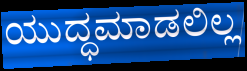
ಯುದ್ಧಮಾಡಲಿಲ್ಲ